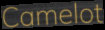
Camelot